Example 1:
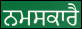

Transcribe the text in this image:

ਨਮਸਕਾਰੈ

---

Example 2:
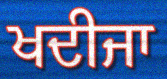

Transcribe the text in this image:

ਖਦੀਜਾ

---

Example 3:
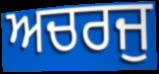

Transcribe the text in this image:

ਅਚਰਜੁ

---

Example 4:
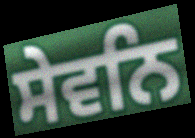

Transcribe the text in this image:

ਸੇਵਨਿ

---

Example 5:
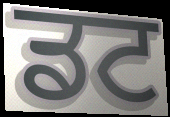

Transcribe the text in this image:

ਡਟ